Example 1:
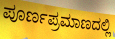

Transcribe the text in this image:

ಪೂರ್ಣಪ್ರಮಾಣದಲ್ಲಿ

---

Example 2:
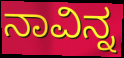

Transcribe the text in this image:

ನಾವಿನ್ನ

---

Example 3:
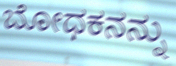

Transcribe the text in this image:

ಬೋಧಕನನ್ನು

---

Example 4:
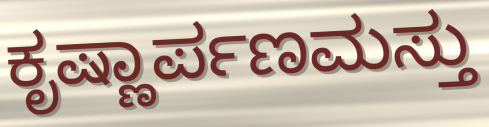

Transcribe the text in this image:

ಕೃಷ್ಣಾರ್ಪಣಮಸ್ತು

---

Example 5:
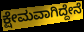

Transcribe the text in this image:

ಕ್ಷೇಮವಾಗಿದ್ದೇನೆ